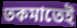
তকমাতেই